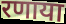
रणाया